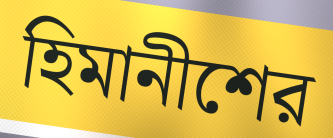
হিমানীশের